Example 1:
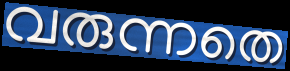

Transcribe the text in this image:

വരുന്നതെ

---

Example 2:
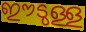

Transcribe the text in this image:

ഈടുള്ള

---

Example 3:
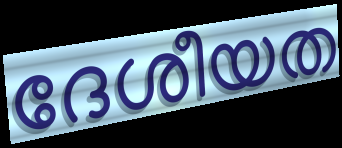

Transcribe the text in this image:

ദേശീയത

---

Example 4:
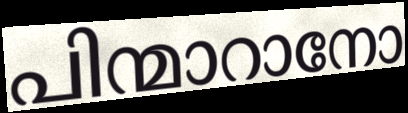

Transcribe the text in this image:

പിന്മാറാനോ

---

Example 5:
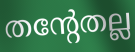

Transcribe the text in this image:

തന്റേതല്ല